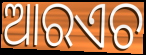
ଆରଏଚ